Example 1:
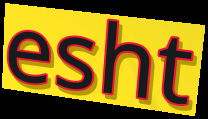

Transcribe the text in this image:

esht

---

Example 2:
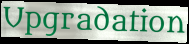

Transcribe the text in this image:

Upgradation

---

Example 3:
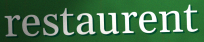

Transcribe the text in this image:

restaurent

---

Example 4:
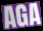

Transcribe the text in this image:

AGA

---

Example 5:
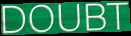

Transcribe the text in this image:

DOUBT